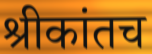
श्रीकांतच